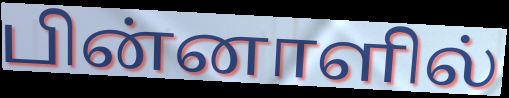
பின்னாளில்